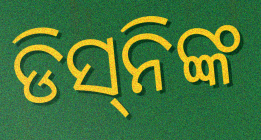
ଡିସ୍‌ନିଙ୍କ